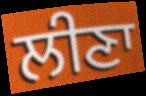
ਲੀਣਾ